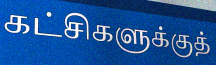
கட்சிகளுக்குத்